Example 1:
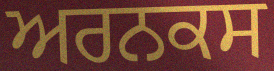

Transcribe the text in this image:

ਅਰਨਕਸ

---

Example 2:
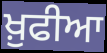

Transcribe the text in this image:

ਖ਼ੁਫੀਆ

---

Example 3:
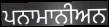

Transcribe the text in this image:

ਪਨਾਮਾਨੀਅਨ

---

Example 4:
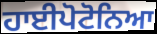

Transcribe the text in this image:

ਹਾਈਪੋਟੋਨਿਆ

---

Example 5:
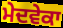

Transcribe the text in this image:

ਮੇਦਵੇਕਾ